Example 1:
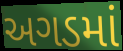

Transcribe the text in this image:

અગડમાં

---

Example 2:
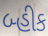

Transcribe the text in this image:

બ્હીક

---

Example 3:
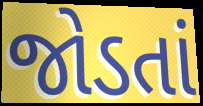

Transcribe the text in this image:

જોડતાં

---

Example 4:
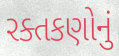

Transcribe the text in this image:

રક્તકણોનું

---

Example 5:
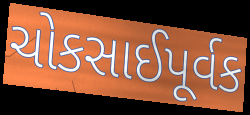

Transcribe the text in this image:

ચોકસાઈપૂર્વક